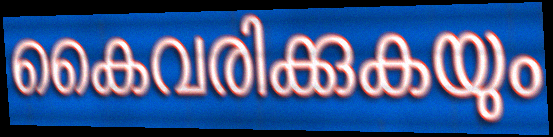
കൈവരിക്കുകയും